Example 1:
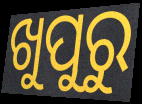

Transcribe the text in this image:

ଖୁପୁରୁ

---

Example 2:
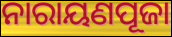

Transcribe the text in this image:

ନାରାୟଣପୂଜା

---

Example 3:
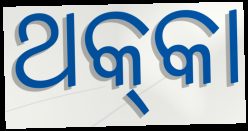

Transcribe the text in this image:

ଥକ୍‌କା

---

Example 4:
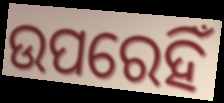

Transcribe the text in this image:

ଉପରେହିଁ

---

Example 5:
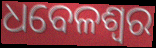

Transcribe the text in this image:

ଧବେଳଶ୍ୱର